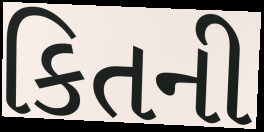
કિતની